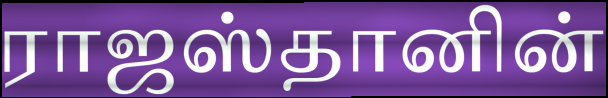
ராஜஸ்தானின்